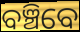
ବଞ୍ଚିବେ